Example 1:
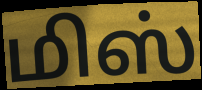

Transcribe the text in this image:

மிஸ்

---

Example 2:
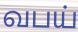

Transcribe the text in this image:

வபய்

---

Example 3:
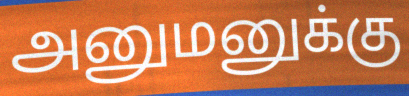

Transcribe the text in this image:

அனுமனுக்கு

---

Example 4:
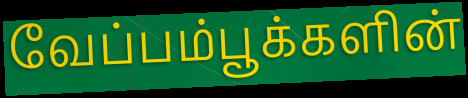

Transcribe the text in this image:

வேப்பம்பூக்களின்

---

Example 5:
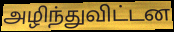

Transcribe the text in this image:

அழிந்துவிட்டன